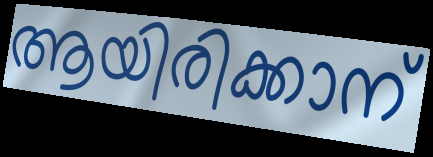
ആയിരിക്കാന്